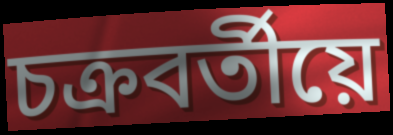
চক্ৰবৰ্তীয়ে